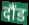
दौंड